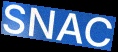
SNAC